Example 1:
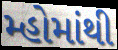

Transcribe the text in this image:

મ્હોમાંથી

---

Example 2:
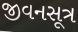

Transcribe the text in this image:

જીવનસૂત્ર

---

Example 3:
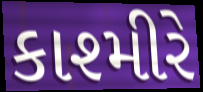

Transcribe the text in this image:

કાશ્મીરે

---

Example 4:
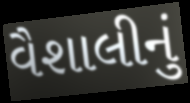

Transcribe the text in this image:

વૈશાલીનું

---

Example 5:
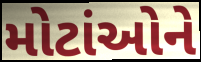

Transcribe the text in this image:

મોટાંઓને